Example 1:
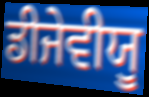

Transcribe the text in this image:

ਡੀਜੇਵੀਯੂ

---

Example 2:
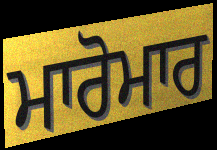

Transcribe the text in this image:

ਮਾਰੋਮਾਰ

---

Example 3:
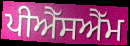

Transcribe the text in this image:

ਪੀਐੱਸਐੱਮ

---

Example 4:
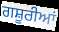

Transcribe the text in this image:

ਗਸ਼ੂਰੀਆਂ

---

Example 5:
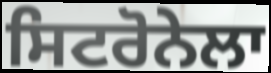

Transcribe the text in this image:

ਸਿਟਰੋਨੇਲਾ